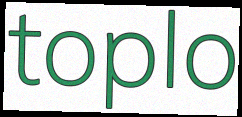
toplo